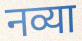
नव्या